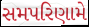
સમપરિણામે